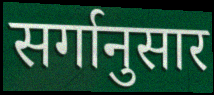
सर्गानुसार